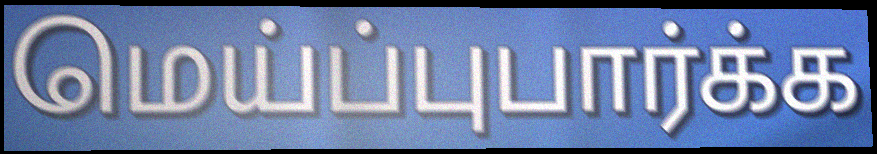
மெய்ப்புபார்க்க